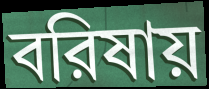
বরিষায়